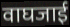
वाघजाई